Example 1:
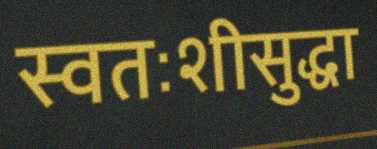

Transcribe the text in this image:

स्वतःशीसुद्धा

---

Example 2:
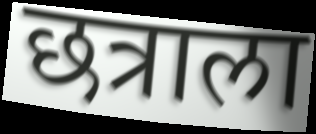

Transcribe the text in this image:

छत्राला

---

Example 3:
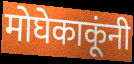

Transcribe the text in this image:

मोघेकाकूंनी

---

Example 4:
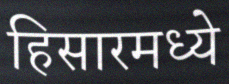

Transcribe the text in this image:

हिसारमध्ये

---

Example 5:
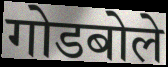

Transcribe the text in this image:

गोडबोले